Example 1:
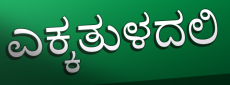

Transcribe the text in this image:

ಎಕ್ಕತುಳದಲಿ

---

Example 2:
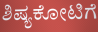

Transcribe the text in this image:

ಶಿಷ್ಯಕೋಟಿಗೆ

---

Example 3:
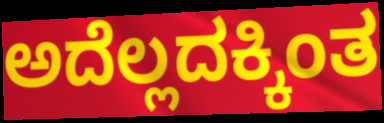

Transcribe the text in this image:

ಅದೆಲ್ಲದಕ್ಕಿಂತ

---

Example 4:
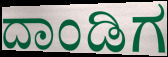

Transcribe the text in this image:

ದಾಂಡಿಗ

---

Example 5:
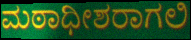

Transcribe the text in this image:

ಮಠಾಧೀಶರಾಗಲಿ